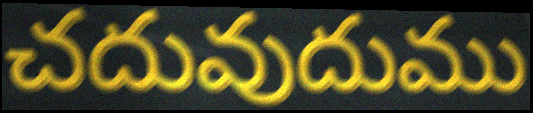
చదువుదుము